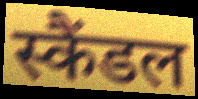
स्कैंडल